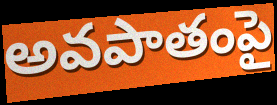
అవపాతంపై